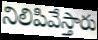
నిలిపివేస్తారు